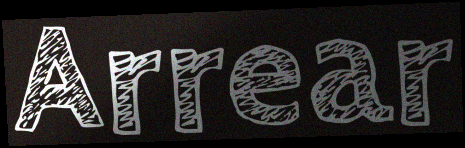
Arrear